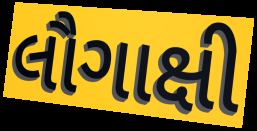
લૌગાક્ષી